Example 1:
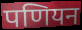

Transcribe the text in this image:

पणियन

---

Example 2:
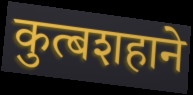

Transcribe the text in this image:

कुत्बशहाने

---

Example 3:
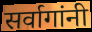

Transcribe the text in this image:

सर्वागांनी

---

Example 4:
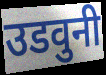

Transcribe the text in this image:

उडवुनी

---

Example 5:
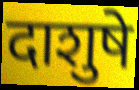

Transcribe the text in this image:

दाशुषे